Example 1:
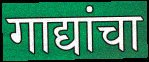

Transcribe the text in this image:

गाद्यांचा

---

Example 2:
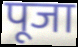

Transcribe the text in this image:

पूजा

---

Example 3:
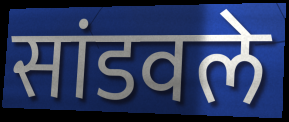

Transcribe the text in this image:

सांडवले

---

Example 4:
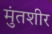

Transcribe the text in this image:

मुंतशीर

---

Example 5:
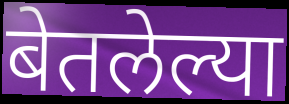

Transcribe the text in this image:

बेतलेल्या